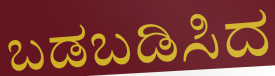
ಬಡಬಡಿಸಿದ